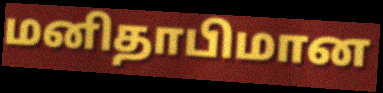
மனிதாபிமான